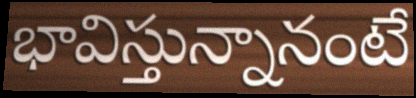
భావిస్తున్నానంటే